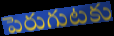
పెరుగుటకు